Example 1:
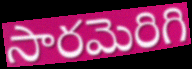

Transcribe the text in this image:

సారమెరిగి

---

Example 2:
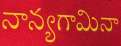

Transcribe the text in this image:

నాన్యగామినా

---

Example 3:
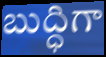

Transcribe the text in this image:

బుద్ధిగా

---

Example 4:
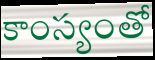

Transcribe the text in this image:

కాంస్యంతో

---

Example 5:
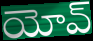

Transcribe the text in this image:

యోవ్